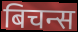
बिचन्स